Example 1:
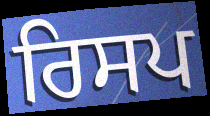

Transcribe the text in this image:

ਰਿਸਪ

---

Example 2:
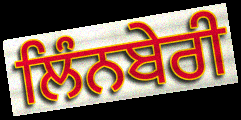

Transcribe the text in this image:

ਲਿੰਨਬੇਰੀ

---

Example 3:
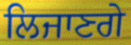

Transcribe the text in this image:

ਲਿਜਾਣਗੇ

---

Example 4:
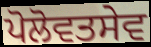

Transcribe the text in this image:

ਪੋਲੋਵਤਸੇਵ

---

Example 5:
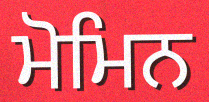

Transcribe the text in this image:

ਮੋਮਿਨ